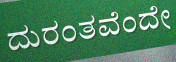
ದುರಂತವೆಂದೇ